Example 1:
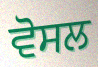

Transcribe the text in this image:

ਵੋਸਲ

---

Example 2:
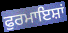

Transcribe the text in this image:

ਫੁਰਮਾਇਸ਼ਾਂ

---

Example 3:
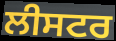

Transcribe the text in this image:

ਲੀਸਟਰ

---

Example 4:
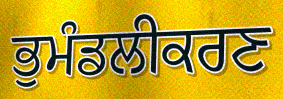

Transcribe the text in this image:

ਭੁਮੰਡਲੀਕਰਣ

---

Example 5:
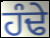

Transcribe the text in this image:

ਹੰਢੇ